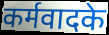
कर्मवादके